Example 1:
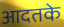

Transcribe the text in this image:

आदतके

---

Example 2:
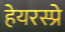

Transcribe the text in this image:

हेयरस्प्रे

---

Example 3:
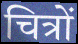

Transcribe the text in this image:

चित्रों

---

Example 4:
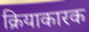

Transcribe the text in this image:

क्रियाकारक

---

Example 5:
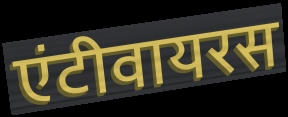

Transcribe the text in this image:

एंटीवायरस